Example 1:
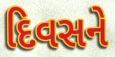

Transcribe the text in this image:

દિવસને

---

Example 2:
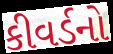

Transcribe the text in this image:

કીવર્ડનો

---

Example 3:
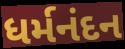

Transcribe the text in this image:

ધર્મનંદન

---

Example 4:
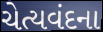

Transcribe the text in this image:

ચેત્યવંદના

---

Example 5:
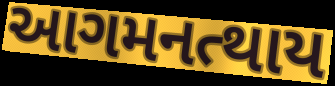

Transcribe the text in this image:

આગમનત્થાય